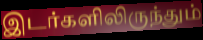
இடர்களிலிருந்தும்